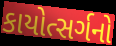
કાયોત્સર્ગનો